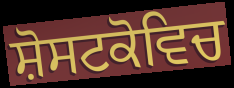
ਸ਼ੋਸਟਕੋਵਿਚ